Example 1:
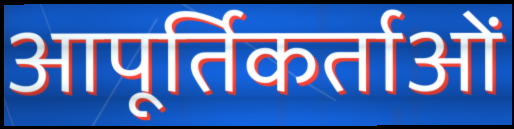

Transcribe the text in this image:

आपूर्तिकर्ताओं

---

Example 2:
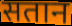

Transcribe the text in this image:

सतान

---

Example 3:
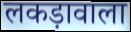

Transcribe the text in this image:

लकड़ावाला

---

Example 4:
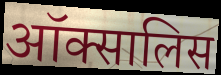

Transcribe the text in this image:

ऑक्सालिस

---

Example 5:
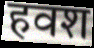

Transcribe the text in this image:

हवश